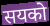
सयको